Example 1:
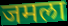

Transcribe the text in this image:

जमला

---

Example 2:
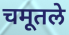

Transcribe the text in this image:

चमूतले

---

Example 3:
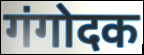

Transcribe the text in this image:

गंगोदक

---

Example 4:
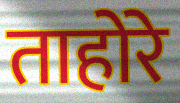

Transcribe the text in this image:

ताहोरे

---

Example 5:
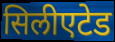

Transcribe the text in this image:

सिलीएटेड